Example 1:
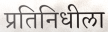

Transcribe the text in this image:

प्रतिनिधीला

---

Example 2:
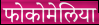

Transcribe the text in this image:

फोकोमेलिया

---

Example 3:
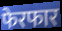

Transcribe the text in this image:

फेरफार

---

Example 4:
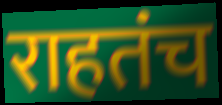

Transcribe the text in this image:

राहतंच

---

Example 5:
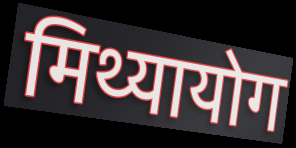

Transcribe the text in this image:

मिथ्यायोग